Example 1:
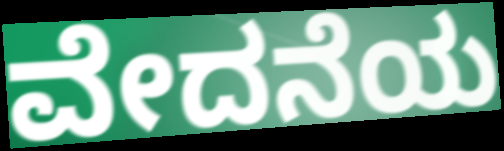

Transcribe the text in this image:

ವೇದನೆಯ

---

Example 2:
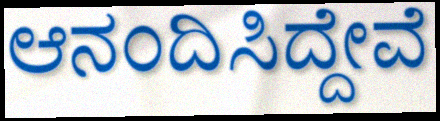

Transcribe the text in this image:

ಆನಂದಿಸಿದ್ದೇವೆ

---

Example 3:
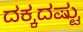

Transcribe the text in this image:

ದಕ್ಕದಷ್ಟು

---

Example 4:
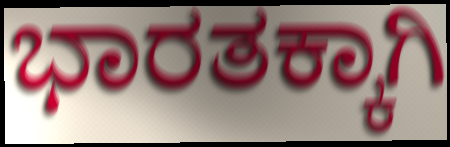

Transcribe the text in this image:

ಭಾರತಕ್ಕಾಗಿ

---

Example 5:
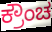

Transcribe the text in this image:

ಕ್ರೌಂಚ